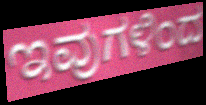
ಇವುಗಳಿಂದ